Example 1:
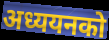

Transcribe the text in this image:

अध्ययनको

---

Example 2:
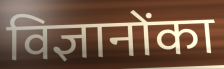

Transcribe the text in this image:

विज्ञानोंका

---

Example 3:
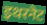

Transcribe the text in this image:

इथरनेट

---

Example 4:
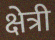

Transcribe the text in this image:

क्षेत्री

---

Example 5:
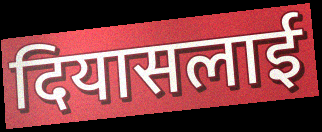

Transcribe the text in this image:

दियासलाई